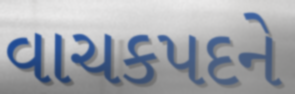
વાચકપદને